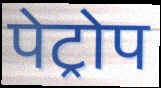
पेट्रोप